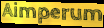
Aimperum